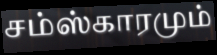
சம்ஸ்காரமும்